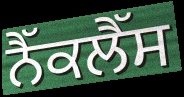
ਨੈੱਕਲੈੱਸ